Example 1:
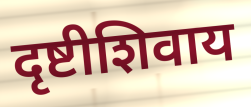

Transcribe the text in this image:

दृष्टीशिवाय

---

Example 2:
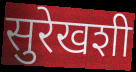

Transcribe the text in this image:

सुरेखशी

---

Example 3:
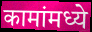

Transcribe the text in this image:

कामांमध्ये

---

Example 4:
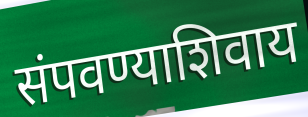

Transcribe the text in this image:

संपवण्याशिवाय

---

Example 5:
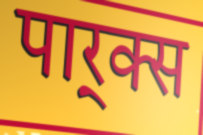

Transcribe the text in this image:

पार्क्स